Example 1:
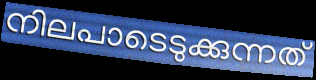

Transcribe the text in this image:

നിലപാടെടുക്കുന്നത്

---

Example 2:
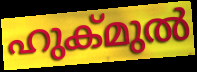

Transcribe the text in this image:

ഹുക്മുൽ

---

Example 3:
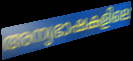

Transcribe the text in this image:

അന്യഭാഷകളിലെ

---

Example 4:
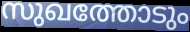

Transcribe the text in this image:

സുഖത്തോടും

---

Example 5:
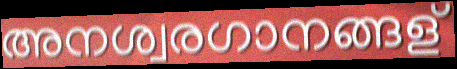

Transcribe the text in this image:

അനശ്വരഗാനങ്ങള്